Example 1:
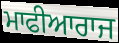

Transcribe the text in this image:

ਮਾਫੀਆਰਾਜ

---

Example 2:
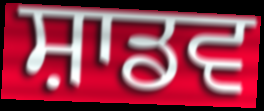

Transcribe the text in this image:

ਸ਼ਾਡਵ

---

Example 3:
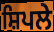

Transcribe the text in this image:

ਸ਼ਿਪਲੇ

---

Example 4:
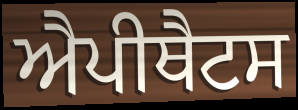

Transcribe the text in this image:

ਐਪੀਥੈਟਸ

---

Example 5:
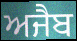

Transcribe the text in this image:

ਅਜੈਬ